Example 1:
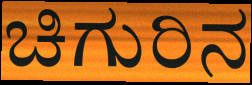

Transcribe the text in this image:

ಚಿಗುರಿನ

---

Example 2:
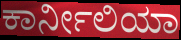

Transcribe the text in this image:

ಕಾರ್ನೀಲಿಯಾ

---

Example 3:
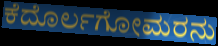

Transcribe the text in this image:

ಕೆದೊರ್ಲಗೋಮರನು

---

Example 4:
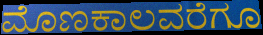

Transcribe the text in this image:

ಮೊಣಕಾಲವರೆಗೂ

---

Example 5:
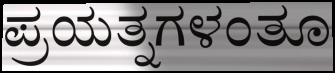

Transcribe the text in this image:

ಪ್ರಯತ್ನಗಳಂತೂ